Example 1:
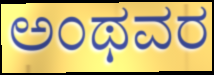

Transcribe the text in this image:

ಅಂಥವರ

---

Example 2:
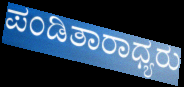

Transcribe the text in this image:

ಪಂಡಿತಾರಾಧ್ಯರು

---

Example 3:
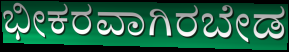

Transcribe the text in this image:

ಭೀಕರವಾಗಿರಬೇಡ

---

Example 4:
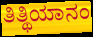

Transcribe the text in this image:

ತಿತ್ಥಿಯಾನಂ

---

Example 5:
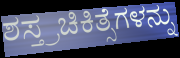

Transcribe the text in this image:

ಶಸ್ತ್ರಚಿಕಿತ್ಸೆಗಳನ್ನು